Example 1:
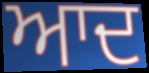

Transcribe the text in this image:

ਆਦ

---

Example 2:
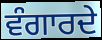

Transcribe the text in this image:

ਵੰਗਾਰਦੇ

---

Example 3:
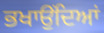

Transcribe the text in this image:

ਭਖਾਉਂਦਿਆਂ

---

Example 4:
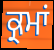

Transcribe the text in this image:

ਕ੍ਰਮਾਂ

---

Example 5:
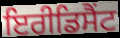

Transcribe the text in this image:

ਇਰੀਡਿਸੈਂਟ